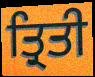
ਤ੍ਰਿਤੀ